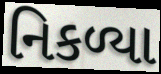
નિકળ્યા